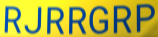
RJRRGRP